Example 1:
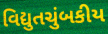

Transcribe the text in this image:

વિદ્યુતચુંબકીય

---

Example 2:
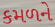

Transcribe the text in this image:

કમળને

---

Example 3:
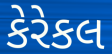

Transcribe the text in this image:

કેરેકલ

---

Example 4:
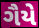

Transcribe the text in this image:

ગૈયે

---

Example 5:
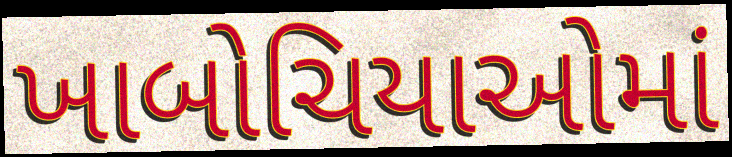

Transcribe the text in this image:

ખાબોચિયાઓમાં